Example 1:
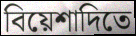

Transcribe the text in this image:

বিয়েশাদিতে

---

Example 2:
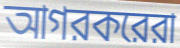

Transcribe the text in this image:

আগরকরেরা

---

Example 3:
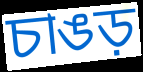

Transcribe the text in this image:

চাঙড়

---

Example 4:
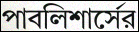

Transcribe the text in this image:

পাবলিশার্সের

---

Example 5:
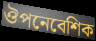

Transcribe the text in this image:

ঔপনেবেশিক